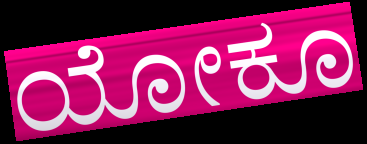
ಯೋಕೂ